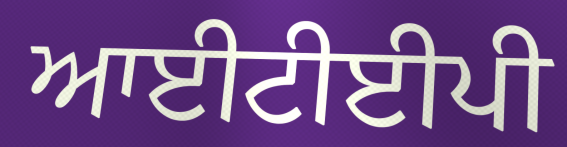
ਆਈਟੀਈਪੀ